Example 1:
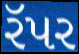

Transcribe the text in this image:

રૅપર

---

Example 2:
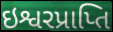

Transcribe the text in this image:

ઇશ્વરપ્રાપ્તિ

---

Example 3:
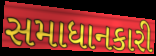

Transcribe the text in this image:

સમાધાનકારી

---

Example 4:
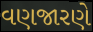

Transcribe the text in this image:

વણજારણે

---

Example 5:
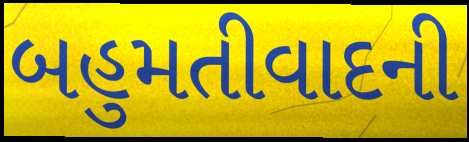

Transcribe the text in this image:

બહુમતીવાદની